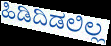
ಹಿಡಿದಿಡಲಿಲ್ಲ